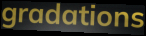
gradations